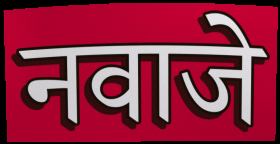
नवाजे